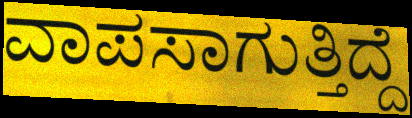
ವಾಪಸಾಗುತ್ತಿದ್ದೆ